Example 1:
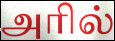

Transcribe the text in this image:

அரில்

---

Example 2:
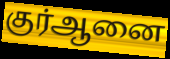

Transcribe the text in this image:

குர்ஆனை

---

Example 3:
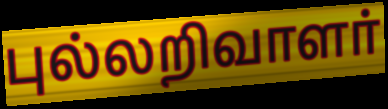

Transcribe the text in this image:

புல்லறிவாளர்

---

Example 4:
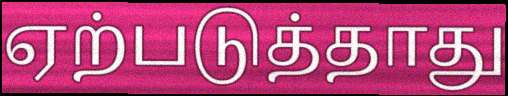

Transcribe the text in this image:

ஏற்படுத்தாது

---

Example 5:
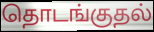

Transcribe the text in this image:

தொடங்குதல்